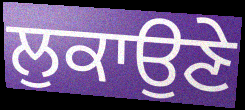
ਲੁਕਾਉਣੇ